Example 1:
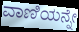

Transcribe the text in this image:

ವಾಣಿಯನ್ನೇ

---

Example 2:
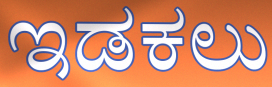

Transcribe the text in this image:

ಇಡಕಲು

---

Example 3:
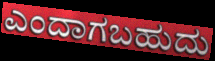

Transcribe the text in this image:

ಎಂದಾಗಬಹುದು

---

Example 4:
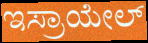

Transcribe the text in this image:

ಇಸ್ರಾಯೇಲ್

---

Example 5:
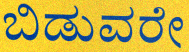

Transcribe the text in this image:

ಬಿಡುವರೇ